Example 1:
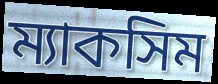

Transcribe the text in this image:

ম্যাকসিম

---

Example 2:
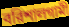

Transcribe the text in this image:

বরিশালগামী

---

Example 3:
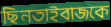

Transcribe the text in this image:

ছিনতাইবাজকে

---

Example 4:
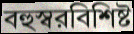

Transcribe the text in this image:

বহুস্বরবিশিষ্ট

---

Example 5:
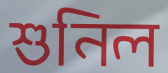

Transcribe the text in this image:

শুনিল